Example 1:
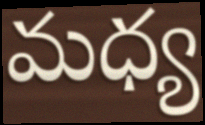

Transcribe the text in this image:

మధ్య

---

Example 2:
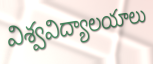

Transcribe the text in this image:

విశ్వవిద్యాలయాలు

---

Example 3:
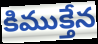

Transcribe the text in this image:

కిముక్తేన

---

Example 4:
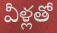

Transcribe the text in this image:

వీళ్లతో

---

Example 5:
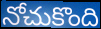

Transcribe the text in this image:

నోచుకొంది